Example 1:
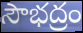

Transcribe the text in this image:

సౌభద్రం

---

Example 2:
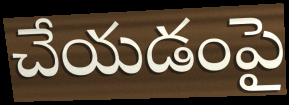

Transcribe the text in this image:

చేయడంపై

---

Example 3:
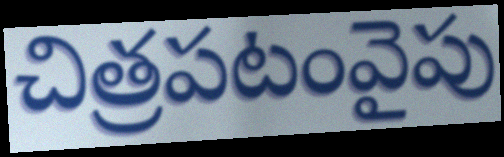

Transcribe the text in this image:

చిత్రపటంవైపు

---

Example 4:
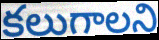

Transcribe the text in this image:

కలుగాలని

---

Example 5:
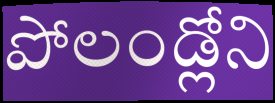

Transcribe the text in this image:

పోలండ్లోని